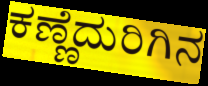
ಕಣ್ಣೆದುರಿಗಿನ